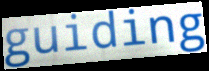
guiding